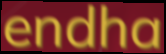
endha